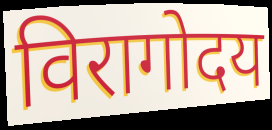
विरागोदय